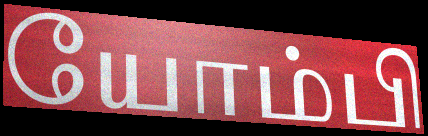
யோம்பி